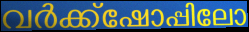
വർക്ക്ഷോപ്പിലോ